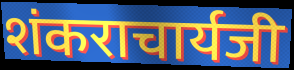
शंकराचार्यजी